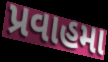
પ્રવાહમા